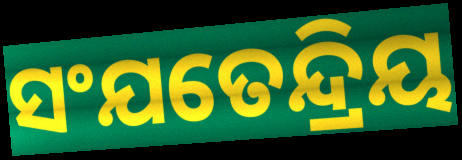
ସଂଯତେନ୍ଦ୍ରିୟ